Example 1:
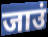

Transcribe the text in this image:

जाउं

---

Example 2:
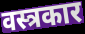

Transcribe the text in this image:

वस्त्रकार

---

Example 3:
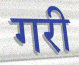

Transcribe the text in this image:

गरी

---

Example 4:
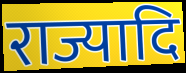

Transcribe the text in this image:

राज्यादि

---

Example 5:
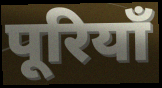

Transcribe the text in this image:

पूरियाँ